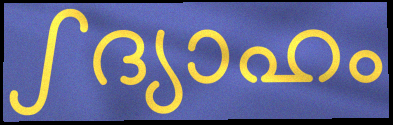
ഽദ്യാഹം